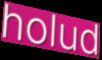
holud